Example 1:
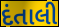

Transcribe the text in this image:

દંતાલી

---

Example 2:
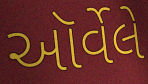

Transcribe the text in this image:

ઑર્વેલે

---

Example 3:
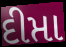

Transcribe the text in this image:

દીપ્તા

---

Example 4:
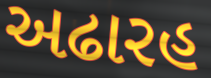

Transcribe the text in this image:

અઢારહ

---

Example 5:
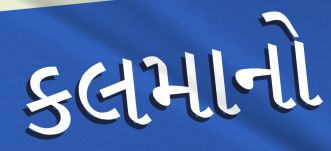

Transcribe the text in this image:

કલમાનો